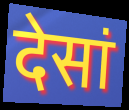
देसां